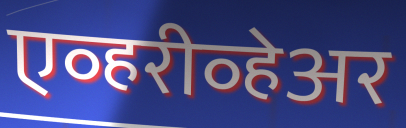
एव्हरीव्हेअर